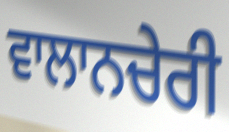
ਵਾਲਾਨਚੇਰੀ